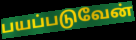
பயப்படுவேன்